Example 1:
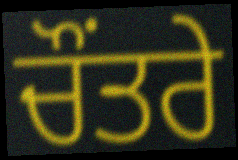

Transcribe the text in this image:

ਚੌਂਤਰੇ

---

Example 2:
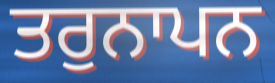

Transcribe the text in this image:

ਤਰੁਨਾਪਨ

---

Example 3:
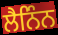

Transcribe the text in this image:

ਲੈਨਿੰਨ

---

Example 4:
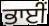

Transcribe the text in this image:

ਭਾਈੰ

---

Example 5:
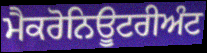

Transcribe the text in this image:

ਮੈਕਰੋਨਿਊਟਰੀਅੰਟ